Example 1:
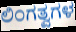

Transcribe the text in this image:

ಲಿಂಗತ್ವಗಳ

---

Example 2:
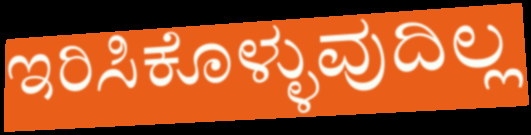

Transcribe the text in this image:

ಇರಿಸಿಕೊಳ್ಳುವುದಿಲ್ಲ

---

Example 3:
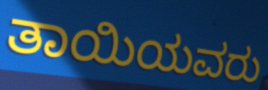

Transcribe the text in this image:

ತಾಯಿಯವರು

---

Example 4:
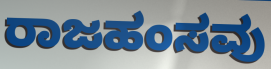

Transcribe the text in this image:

ರಾಜಹಂಸವು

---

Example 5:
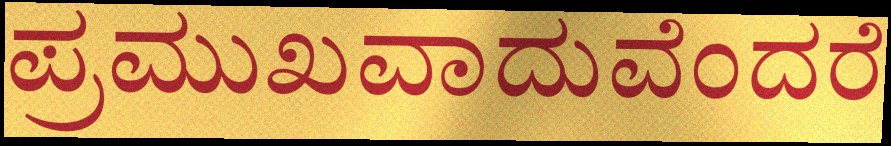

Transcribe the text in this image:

ಪ್ರಮುಖವಾದುವೆಂದರೆ